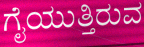
ಗೈಯುತ್ತಿರುವ